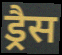
ड्रैस